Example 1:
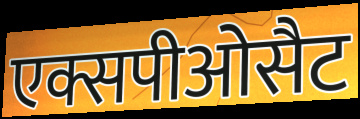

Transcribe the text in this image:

एक्सपीओसैट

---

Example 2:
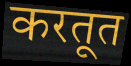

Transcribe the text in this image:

करतूत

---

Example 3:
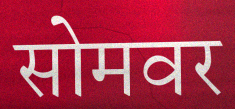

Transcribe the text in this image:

सोमवर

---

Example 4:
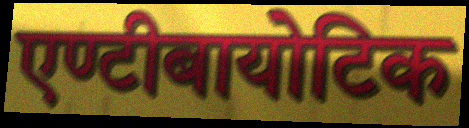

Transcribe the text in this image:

एण्टीबायोटिक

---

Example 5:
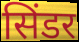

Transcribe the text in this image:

सिंडर